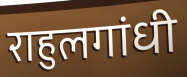
राहुलगांधी